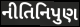
નીતિનિપુણ